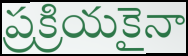
ప్రక్రియకైనా